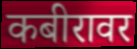
कबीरावर